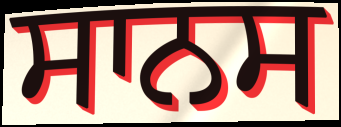
ਸਾਨਸ